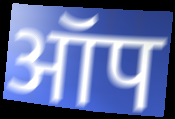
ऑप